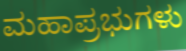
ಮಹಾಪ್ರಭುಗಳು